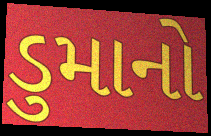
ડુમાનો